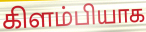
கிளம்பியாக